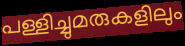
പള്ളിച്ചുമരുകളിലും